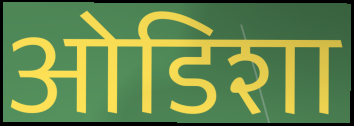
ओडिशा